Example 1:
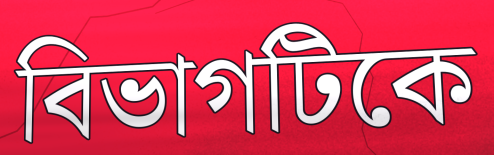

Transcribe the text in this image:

বিভাগটিকে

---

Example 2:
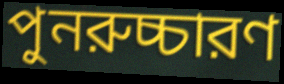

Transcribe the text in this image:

পুনরুচ্চারণ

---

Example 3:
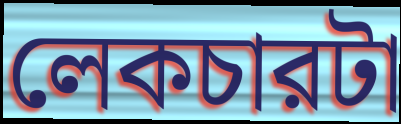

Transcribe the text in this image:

লেকচারটা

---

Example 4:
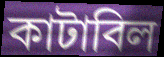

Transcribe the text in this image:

কাটাবিল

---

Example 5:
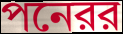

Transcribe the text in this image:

পনেরর